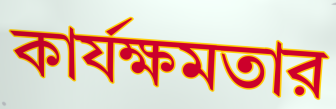
কার্যক্ষমতার